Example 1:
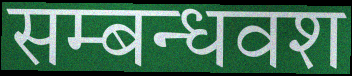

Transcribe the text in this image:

सम्बन्धवश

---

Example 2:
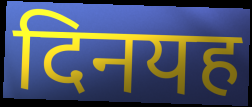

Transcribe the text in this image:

दिनयह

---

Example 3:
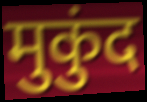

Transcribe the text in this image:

मुकुंद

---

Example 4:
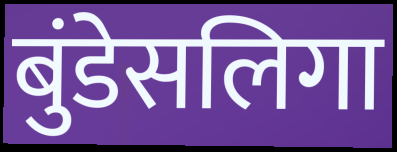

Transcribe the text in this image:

बुंडेसलिगा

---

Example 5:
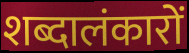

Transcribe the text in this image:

शब्दालंकारों